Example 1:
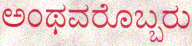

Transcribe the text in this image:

ಅಂಥವರೊಬ್ಬರು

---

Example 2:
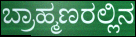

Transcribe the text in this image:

ಬ್ರಾಹ್ಮಣರಲ್ಲಿನ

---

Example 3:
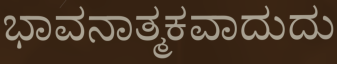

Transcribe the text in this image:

ಭಾವನಾತ್ಮಕವಾದುದು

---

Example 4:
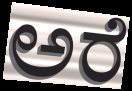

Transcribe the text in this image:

ಅರೆ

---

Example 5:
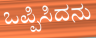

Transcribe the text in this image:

ಒಪ್ಪಿಸಿದನು